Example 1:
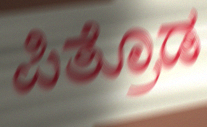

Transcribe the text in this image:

ಪಿತ್ರೊಡ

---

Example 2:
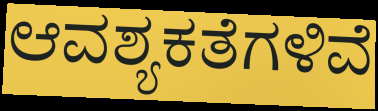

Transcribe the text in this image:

ಆವಶ್ಯಕತೆಗಳಿವೆ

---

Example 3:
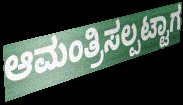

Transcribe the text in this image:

ಆಮಂತ್ರಿಸಲ್ಪಟ್ಟಾಗ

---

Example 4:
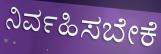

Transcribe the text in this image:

ನಿರ್ವಹಿಸಬೇಕೆ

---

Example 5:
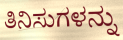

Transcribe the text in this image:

ತಿನಿಸುಗಳನ್ನು